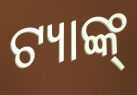
ଟ୍ୟାଙ୍କ୍